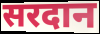
सरदान